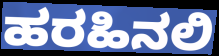
ಹರಹಿನಲಿ